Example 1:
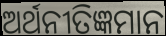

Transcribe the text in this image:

ଅର୍ଥନୀତିଜ୍ଞମାନ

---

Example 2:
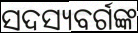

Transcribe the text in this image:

ସଦସ୍ୟବର୍ଗଙ୍କ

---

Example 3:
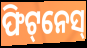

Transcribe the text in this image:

ଫିଟ୍‌ନେସ୍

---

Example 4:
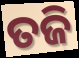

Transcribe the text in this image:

ତଜି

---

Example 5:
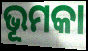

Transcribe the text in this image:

ଭୂମକା